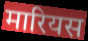
मारियस